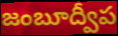
జంబూద్వీప